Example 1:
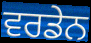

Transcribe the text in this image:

ਵਰਡੇਨ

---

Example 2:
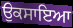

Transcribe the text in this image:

ਉਕਸਾਇਆ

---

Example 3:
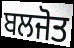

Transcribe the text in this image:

ਬਲਜੋਤ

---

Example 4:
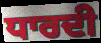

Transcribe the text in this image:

ਧਾਰਦੀ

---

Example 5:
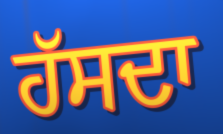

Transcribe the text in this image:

ਹੱਸਦਾ